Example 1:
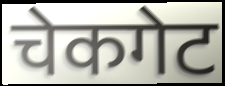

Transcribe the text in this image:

चेकगेट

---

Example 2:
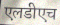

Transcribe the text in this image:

एलडीएच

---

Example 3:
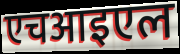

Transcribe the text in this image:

एचआइएल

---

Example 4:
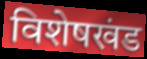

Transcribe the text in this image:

विशेषखंड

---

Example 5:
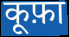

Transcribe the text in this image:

कूफ़ा